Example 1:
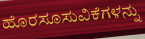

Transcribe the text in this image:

ಹೊರಸೂಸುವಿಕೆಗಳನ್ನು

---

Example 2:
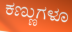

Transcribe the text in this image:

ಕಣ್ಣುಗಳೂ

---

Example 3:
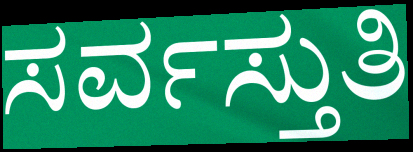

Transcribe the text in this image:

ಸರ್ವಸ್ತುತಿ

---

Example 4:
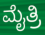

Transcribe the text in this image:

ಮೈತ್ರಿ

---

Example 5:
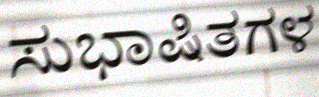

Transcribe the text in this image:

ಸುಭಾಷಿತಗಳ